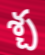
శ్చ